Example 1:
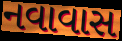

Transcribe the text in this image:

નવાવાસ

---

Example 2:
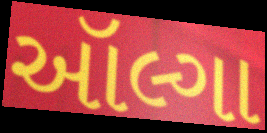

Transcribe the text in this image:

ઑલ્ગા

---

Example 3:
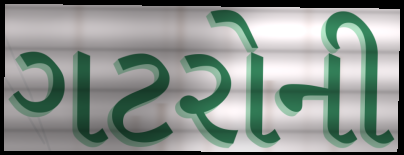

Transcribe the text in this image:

ગટરોની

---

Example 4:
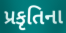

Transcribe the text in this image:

પ્રકૃતિના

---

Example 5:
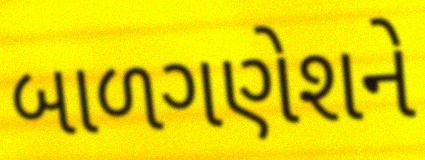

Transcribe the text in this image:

બાળગણેશને